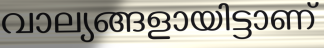
വാല്യങ്ങളായിട്ടാണ്